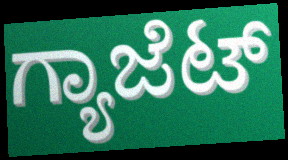
ಗ್ಯಾಜೆಟ್